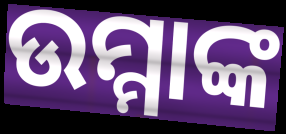
ଉମ୍ମାଙ୍କ